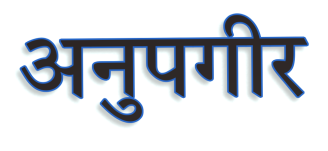
अनुपगीर